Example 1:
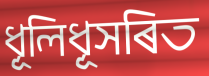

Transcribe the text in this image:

ধূলিধূসৰিত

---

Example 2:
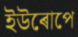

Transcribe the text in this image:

ইউৰোপে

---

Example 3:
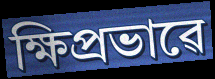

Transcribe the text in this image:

ক্ষিপ্ৰভাৱে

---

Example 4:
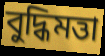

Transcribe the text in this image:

বুদ্ধিমত্তা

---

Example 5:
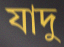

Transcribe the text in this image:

যাদু